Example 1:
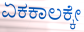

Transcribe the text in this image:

ಏಕಕಾಲಕ್ಕೇ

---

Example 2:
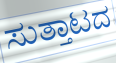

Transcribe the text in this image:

ಸುತ್ತಾಟದ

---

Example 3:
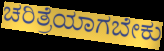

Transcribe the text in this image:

ಚರಿತ್ರೆಯಾಗಬೇಕು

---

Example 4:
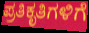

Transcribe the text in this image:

ಪ್ರತಿಕೃತಿಗಳಿಗೆ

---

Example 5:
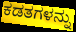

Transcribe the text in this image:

ಕಡತಗಳನ್ನು